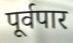
पूर्वपार